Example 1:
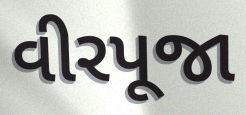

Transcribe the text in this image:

વીરપૂજા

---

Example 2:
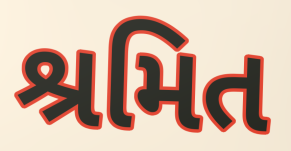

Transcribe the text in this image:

શ્રમિત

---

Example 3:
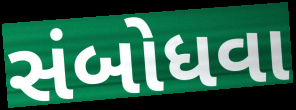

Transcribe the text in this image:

સંબોધવા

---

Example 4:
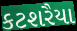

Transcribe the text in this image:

કટશરૈયા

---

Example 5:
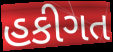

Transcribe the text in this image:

હકીગત